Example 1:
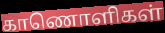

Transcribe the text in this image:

காணொளிகள்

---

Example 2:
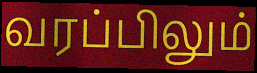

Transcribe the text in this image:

வரப்பிலும்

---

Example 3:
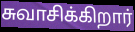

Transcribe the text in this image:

சுவாசிக்கிறார்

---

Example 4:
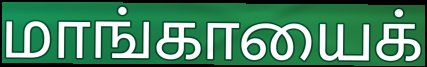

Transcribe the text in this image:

மாங்காயைக்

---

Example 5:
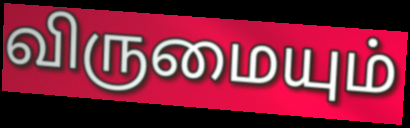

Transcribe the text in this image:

விருமையும்